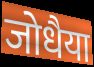
जोधैया